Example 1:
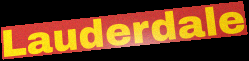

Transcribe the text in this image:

Lauderdale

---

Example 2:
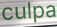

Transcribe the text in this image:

culpa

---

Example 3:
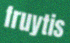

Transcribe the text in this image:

fruytis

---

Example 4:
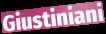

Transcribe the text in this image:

Giustiniani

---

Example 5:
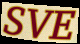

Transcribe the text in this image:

SVE